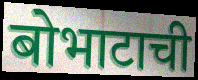
बोभाटाची